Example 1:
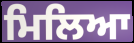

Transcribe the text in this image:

ਮਿਲਿਆ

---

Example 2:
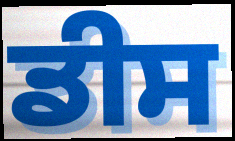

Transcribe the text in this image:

ਡੀਸ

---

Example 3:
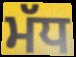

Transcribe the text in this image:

ਮੱਧ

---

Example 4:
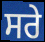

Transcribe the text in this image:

ਸਰੇ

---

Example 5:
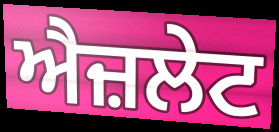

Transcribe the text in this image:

ਐਜ਼ਲੇਟ